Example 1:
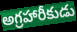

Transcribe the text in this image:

అగ్రహారీకుడు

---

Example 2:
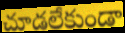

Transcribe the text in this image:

చూడలేకుండా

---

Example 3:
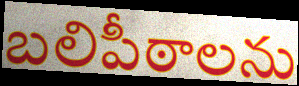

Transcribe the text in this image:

బలిపీఠాలను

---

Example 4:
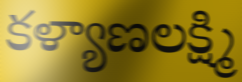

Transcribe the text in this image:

కళ్యాణలక్ష్మి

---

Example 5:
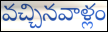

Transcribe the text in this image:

వచ్చినవాళ్లం